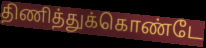
திணித்துக்கொண்டே